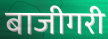
बाजीगरी